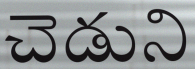
చెడుని